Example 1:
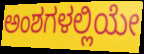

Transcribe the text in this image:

ಅಂಶಗಳಲ್ಲಿಯೇ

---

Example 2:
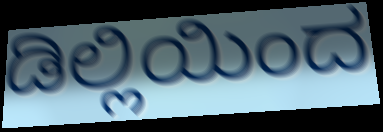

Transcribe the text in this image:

ಡಿಲ್ಲಿಯಿಂದ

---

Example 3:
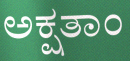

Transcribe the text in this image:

ಅಕ್ಷತಾಂ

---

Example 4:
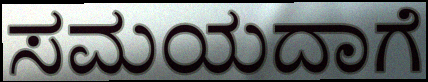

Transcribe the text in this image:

ಸಮಯದಾಗೆ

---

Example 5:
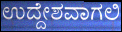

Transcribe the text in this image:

ಉದ್ದೇಶವಾಗಲಿ